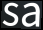
sa